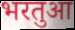
भरतुआ